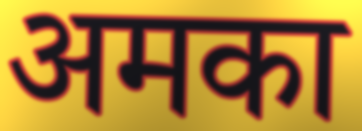
अमका